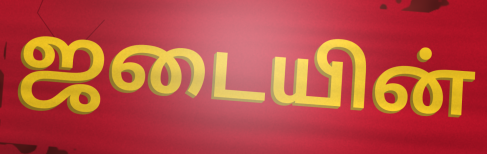
ஜடையின்